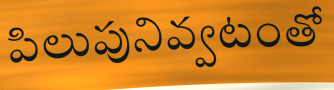
పిలుపునివ్వటంతో